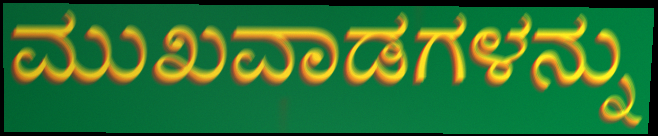
ಮುಖವಾಡಗಳನ್ನು